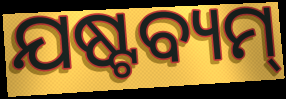
ଯଷ୍ଟବ୍ୟମ୍